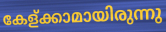
കേള്ക്കാമായിരുന്നു